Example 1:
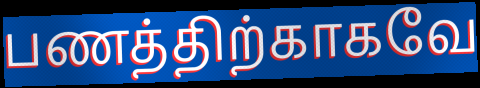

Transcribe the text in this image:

பணத்திற்காகவே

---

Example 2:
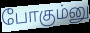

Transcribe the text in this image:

போகும்னு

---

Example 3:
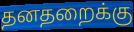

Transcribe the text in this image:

தனதறைக்கு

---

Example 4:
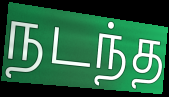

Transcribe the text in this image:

நடந்த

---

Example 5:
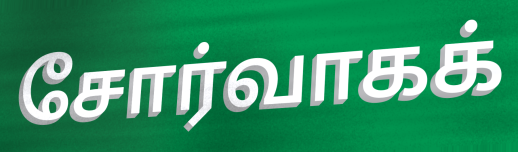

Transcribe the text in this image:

சோர்வாகக்